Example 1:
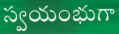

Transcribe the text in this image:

స్వయంభుగా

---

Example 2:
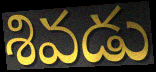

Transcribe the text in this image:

శివడు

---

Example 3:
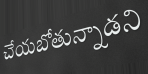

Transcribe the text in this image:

చేయబోతున్నాడని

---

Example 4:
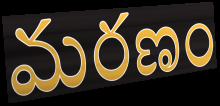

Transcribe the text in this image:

మరణం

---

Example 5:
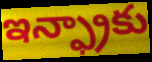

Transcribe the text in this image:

ఇన్ఫ్రాకు